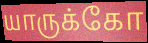
யாருக்கோ